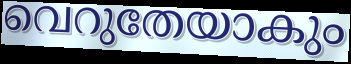
വെറുതേയാകും